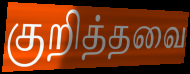
குறித்தவை